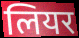
लियर